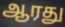
ஆரது